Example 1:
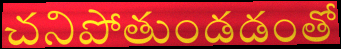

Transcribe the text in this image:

చనిపోతుండడంతో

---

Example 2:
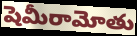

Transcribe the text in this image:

షెమీరామోతు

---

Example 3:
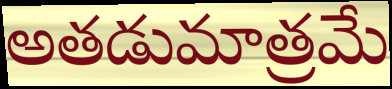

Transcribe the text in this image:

అతడుమాత్రమే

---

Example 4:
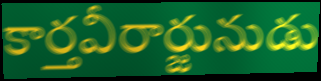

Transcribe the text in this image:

కార్తవీరార్జునుడు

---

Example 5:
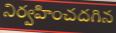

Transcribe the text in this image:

నిర్వహించదగిన